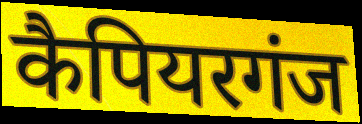
कैपियरगंज